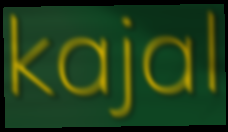
kajal